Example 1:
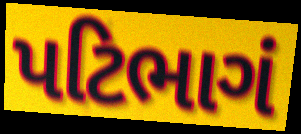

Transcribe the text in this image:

પટિભાગં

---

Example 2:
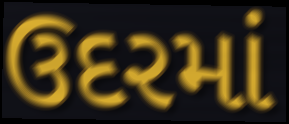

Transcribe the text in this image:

ઉદરમાં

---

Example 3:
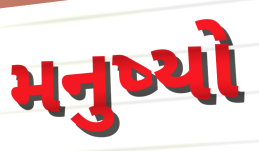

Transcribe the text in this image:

મનુષ્યો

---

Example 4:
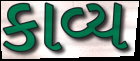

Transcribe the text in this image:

કાવ્ય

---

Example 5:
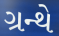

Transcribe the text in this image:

ગ્રન્થે